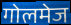
गोलमेज